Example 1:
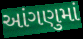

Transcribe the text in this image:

આંગણુમાં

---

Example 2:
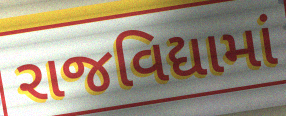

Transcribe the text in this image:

રાજવિદ્યામાં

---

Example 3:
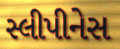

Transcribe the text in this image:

સ્લીપીનેસ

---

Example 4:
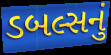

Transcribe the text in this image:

ડબલ્સનું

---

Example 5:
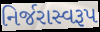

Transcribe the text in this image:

નિર્જરાસ્વરૂપ